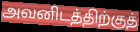
அவனிடத்திற்குத்